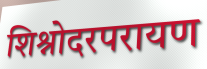
शिश्नोदरपरायण